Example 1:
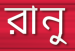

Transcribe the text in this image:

রানু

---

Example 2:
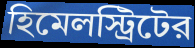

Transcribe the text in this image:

হিমেলস্ট্রিটের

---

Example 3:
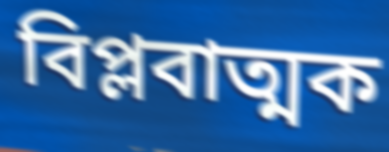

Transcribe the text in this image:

বিপ্লবাত্মক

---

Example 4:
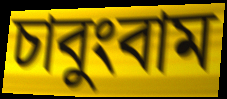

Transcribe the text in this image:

চাবুংবাম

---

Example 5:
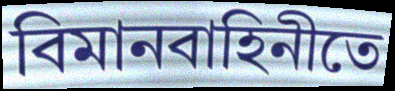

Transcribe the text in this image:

বিমানবাহিনীতে